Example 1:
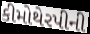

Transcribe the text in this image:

કીમોથેરપીની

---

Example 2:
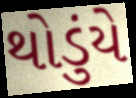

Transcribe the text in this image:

થોડુંયે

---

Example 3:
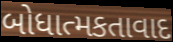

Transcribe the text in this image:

બોધાત્મકતાવાદ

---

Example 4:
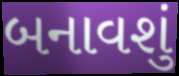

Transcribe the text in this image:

બનાવશું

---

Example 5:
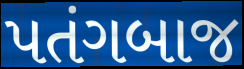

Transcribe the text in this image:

પતંગબાજ